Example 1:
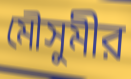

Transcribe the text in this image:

মৌসুমীর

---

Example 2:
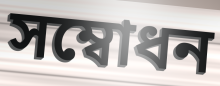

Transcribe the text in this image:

সম্বোধন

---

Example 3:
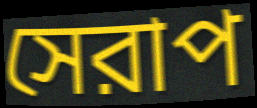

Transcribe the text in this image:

সেরাপ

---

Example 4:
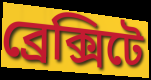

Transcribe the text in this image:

ব্রেক্সিটে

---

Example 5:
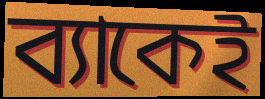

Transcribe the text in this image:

ব্যাকেই